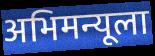
अभिमन्यूला